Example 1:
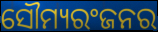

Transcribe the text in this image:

ସୌମ୍ୟରଂଜନର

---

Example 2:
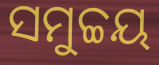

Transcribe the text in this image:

ସମୁଚ୍ଚୟ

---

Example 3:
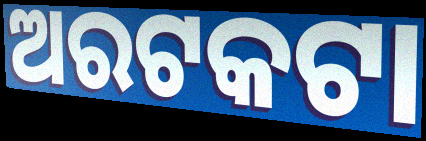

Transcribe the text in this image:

ଅରଟକଟା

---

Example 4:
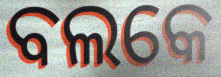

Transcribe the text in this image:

ବଲକେ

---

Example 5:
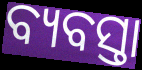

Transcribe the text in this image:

ବ୍ୟବସ୍ତା